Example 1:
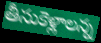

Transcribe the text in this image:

తీసుకెళ్లాలన్న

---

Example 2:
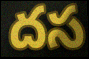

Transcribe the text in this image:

దస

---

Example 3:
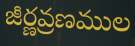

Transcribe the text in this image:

జీర్ణవ్రణముల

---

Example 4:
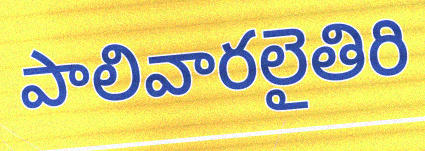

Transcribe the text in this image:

పాలివారలైతిరి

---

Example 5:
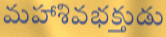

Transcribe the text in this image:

మహాశివభక్తుడు